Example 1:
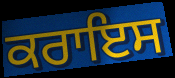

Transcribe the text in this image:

ਕਰਾਇਸ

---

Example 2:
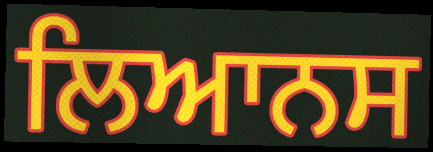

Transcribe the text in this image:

ਲਿਆਨਸ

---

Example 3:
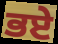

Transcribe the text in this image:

ਭਏ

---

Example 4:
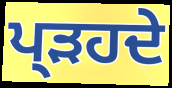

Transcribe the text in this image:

ਪ੍ੜਹਦੇ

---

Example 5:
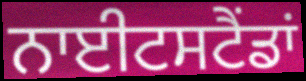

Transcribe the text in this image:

ਨਾਈਟਸਟੈਂਡਾਂ